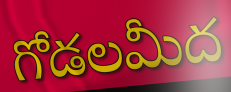
గోడలమీద